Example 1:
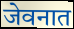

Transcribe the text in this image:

जेवनात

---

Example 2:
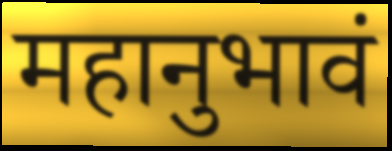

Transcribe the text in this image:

महानुभावं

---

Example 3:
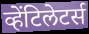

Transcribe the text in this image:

व्हेंटिलेटर्स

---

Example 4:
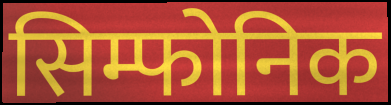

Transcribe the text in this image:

सिम्फोनिक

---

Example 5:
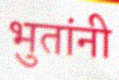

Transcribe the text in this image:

भुतांनी